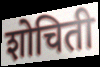
शोचिती